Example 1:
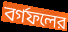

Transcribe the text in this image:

বর্গফলের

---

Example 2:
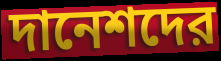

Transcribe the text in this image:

দানেশদের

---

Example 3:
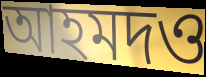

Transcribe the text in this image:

আহমদও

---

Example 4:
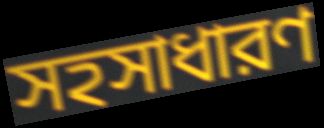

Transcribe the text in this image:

সহসাধারণ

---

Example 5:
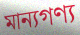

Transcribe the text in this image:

মান্যগণ্য